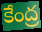
కేంద్ర